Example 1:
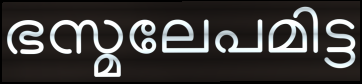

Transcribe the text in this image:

ഭസ്മലേപമിട്ട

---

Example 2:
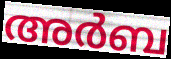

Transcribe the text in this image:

അർബ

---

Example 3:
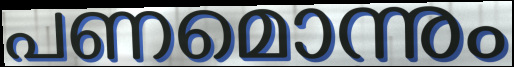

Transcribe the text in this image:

പണമൊന്നും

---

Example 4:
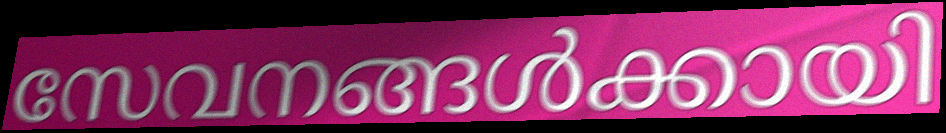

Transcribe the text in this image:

സേവനങ്ങൾക്കായി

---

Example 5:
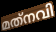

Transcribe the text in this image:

മത്‌നവി